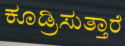
ಕೂಡ್ರಿಸುತ್ತಾರೆ